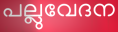
പല്ലുവേദന